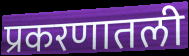
प्रकरणातली